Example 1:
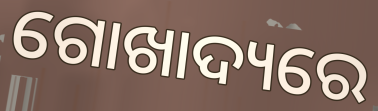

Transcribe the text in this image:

ଗୋଖାଦ୍ୟରେ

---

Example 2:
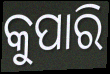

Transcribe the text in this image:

କୁପାରି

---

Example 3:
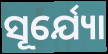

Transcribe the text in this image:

ସୂର୍ଯ୍ୟୋ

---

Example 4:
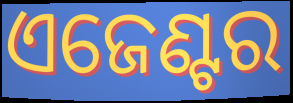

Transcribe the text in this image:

ଏଜେଣ୍ଟର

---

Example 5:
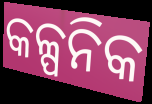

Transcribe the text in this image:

କଳ୍ପନିକ